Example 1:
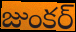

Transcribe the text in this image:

జుంకర్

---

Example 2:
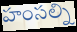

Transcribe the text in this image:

హంసల్ని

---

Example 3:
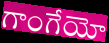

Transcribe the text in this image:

గాంగేయో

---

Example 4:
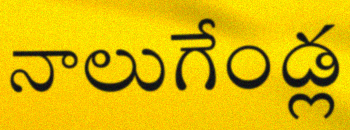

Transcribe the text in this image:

నాలుగేండ్ల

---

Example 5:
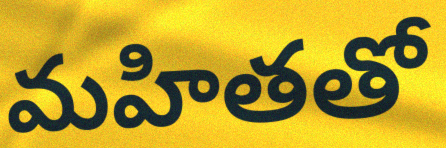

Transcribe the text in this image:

మహితతో